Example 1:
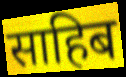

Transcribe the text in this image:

साहिब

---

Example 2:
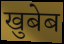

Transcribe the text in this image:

खुबेब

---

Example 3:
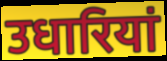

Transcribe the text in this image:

उधारियां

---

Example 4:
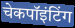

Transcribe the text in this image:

चेकपॉइंटिंग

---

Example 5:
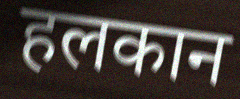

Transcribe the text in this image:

हलकान